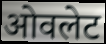
ओवलेट